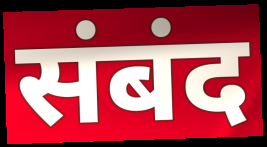
संबंद